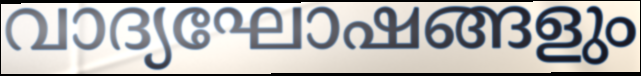
വാദ്യഘോഷങ്ങളും